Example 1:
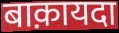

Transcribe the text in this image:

बाक़ायदा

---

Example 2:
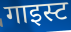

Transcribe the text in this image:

गाइस्ट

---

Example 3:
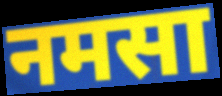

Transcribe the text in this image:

नमसा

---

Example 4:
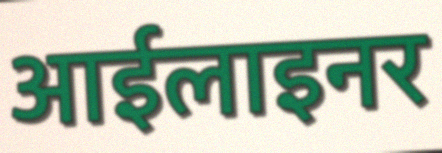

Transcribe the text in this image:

आईलाइनर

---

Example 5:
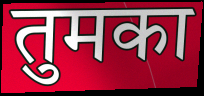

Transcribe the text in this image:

तुमका